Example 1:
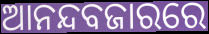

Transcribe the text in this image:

ଆନନ୍ଦବଜାରରେ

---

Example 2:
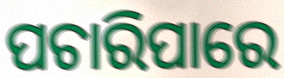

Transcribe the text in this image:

ପଚାରିପାରେ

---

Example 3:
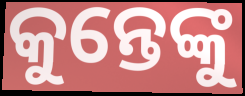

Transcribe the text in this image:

କୁନ୍ତେଙ୍କୁ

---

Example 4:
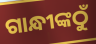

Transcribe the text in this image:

ଗାନ୍ଧୀଙ୍କଠୁଁ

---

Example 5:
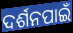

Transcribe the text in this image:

ଦର୍ଶନପାଇଁ